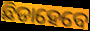
ଛିଡାହେବେ